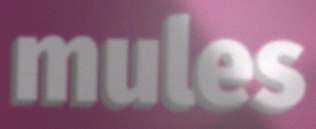
mules